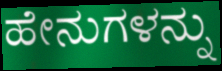
ಹೇನುಗಳನ್ನು